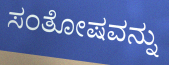
ಸಂತೋಷವನ್ನು